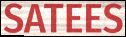
SATEES